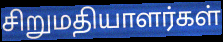
சிறுமதியாளர்கள்